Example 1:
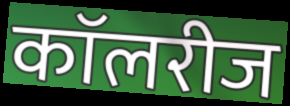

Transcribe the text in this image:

कॉलरीज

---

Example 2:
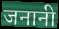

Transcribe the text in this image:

जनानी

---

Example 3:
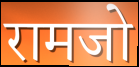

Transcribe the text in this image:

रामजो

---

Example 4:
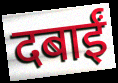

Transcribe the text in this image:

दबाईं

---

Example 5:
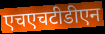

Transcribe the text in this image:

एचएचटीडीएन